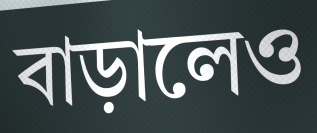
বাড়ালেও